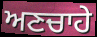
ਅਣਚਾਹੇ